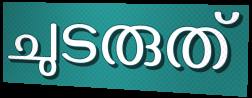
ചുടരുത്